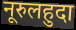
नूरुलहुदा